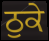
ਠੁਕੇ